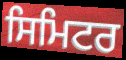
ਸਿਮਿਟਰ